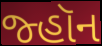
જ્હૉન